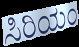
ಸಿರಿಯಂ